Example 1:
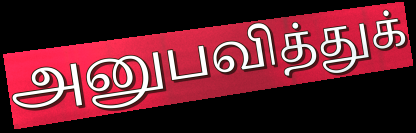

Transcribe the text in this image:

அனுபவித்துக்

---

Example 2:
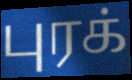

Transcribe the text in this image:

புரக்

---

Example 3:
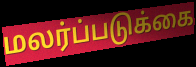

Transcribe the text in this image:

மலர்ப்படுக்கை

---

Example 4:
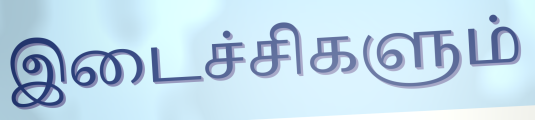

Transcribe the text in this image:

இடைச்சிகளும்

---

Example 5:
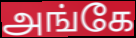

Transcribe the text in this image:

அங்கே